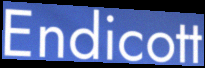
Endicott